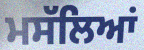
ਮਸੱਲਿਆਂ